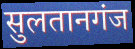
सुलतानगंज